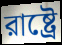
রাষ্ট্রে